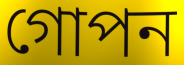
গোপন